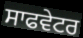
ਸਾਫਵੇਟਰ